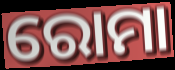
ରୋମା